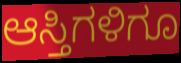
ಆಸ್ತಿಗಳಿಗೂ